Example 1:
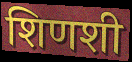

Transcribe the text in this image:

शिणशी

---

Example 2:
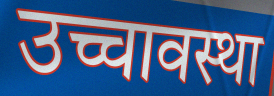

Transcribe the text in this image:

उच्चावस्था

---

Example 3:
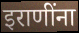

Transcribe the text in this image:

इराणींना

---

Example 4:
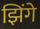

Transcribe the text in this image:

झिंगे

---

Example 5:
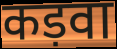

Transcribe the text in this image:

कड़वा